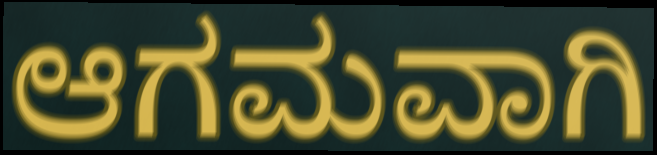
ಆಗಮವಾಗಿ